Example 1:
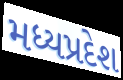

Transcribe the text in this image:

મધ્યપ્રદેશ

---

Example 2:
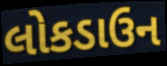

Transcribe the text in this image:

લોકડાઉન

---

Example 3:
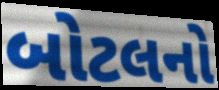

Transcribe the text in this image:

બોટલનો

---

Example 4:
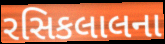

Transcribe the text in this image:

રસિકલાલના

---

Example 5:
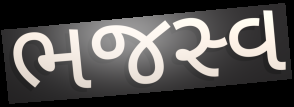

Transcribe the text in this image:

ભજસ્વ